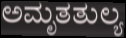
ಅಮೃತತುಲ್ಯ